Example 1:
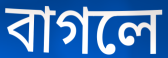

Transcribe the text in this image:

বাগলে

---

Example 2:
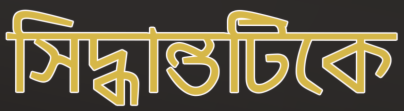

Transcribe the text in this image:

সিদ্ধান্তটিকে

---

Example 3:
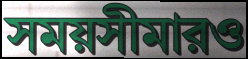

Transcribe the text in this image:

সময়সীমারও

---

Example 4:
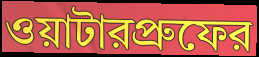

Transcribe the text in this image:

ওয়াটারপ্রুফের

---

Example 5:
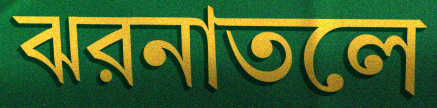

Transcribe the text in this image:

ঝরনাতলে